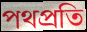
পথপ্রতি